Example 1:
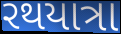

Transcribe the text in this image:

રથયાત્રા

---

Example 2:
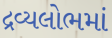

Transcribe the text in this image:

દ્રવ્યલોભમાં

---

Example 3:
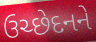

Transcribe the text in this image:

ઉચ્છેદનને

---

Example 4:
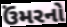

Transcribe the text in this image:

ઉંમરનો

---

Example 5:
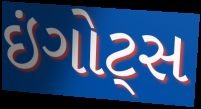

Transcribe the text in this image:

ઇંગોટ્સ